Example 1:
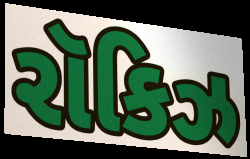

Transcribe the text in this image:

રૉકિઝ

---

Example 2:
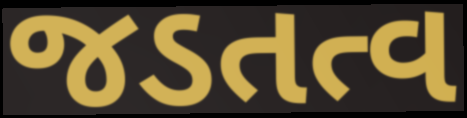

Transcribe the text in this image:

જડતત્વ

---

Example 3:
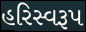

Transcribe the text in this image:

હરિસ્વરૂપ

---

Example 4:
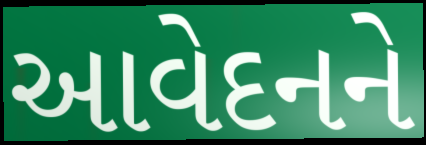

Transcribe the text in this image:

આવેદનને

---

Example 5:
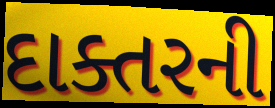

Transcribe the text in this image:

દાક્તરની